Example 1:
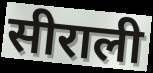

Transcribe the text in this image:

सीराली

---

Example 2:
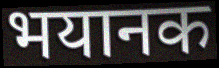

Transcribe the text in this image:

भयानक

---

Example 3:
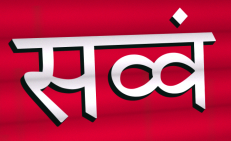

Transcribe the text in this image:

सव्वं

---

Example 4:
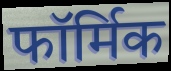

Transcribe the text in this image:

फॉर्मिक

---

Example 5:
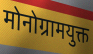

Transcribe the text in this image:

मोनोग्रामयुक्त